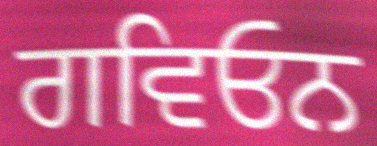
ਗਵਿਓਨ